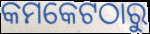
କମକେଟଠାରୁ